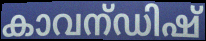
കാവന്ഡിഷ്